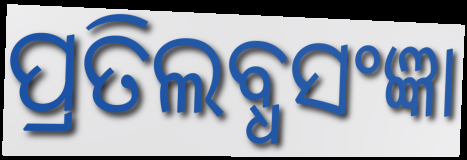
ପ୍ରତିଲବ୍ଧସଂଜ୍ଞା